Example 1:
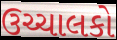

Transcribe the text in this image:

ઉચ્ચાલકો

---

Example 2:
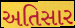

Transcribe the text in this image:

અતિસાર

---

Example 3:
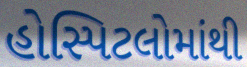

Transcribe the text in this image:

હોસ્પિટલોમાંથી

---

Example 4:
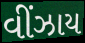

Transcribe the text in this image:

વીંઝાય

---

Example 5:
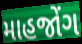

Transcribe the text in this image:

માહજોંગ